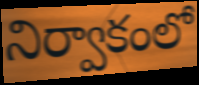
నిర్వాకంలో